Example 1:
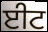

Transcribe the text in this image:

ਈਟ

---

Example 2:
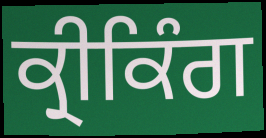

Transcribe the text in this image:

ਕ੍ਰੀਕਿੰਗ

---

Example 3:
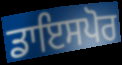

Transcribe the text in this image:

ਡਾਇਸਪੋਰ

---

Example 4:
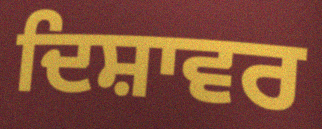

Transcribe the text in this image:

ਦਿਸ਼ਾਵਰ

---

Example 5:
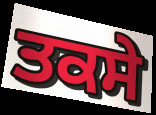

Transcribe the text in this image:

ਤਕਸੇ